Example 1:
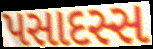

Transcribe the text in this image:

પસાદસ્સ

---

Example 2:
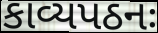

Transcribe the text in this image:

કાવ્યપઠનઃ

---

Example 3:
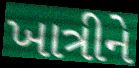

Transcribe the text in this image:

ખાત્રીને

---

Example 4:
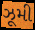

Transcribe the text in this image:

ઝૂમી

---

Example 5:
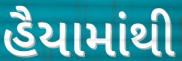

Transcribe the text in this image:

હૈયામાંથી